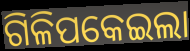
ଗିଳିପକେଇଲା